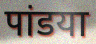
पांडया